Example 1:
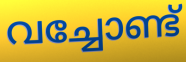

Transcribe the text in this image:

വച്ചോണ്ട്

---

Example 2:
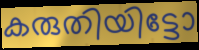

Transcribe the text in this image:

കരുതിയിട്ടോ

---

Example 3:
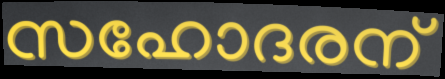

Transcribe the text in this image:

സഹോദരന്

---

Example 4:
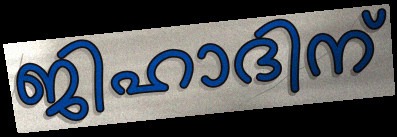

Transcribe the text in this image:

ജിഹാദിന്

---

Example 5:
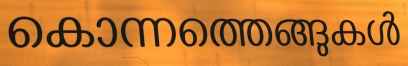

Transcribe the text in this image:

കൊന്നത്തെങ്ങുകൾ